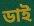
ডাই